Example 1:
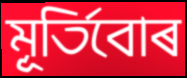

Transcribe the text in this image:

মূৰ্তিবোৰ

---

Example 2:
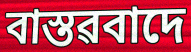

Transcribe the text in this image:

বাস্তৱবাদে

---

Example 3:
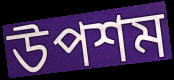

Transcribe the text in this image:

উপশম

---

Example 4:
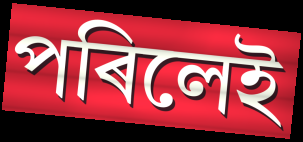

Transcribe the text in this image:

পৰিলেই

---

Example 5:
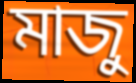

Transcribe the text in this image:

মাজু